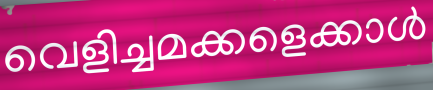
വെളിച്ചമക്കളെക്കാൾ